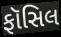
ફૉસિલ